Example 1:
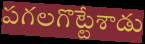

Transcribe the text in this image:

పగలగొట్టేశాడు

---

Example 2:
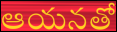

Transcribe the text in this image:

ఆయనతో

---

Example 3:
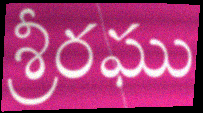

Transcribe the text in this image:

శ్రీరఘు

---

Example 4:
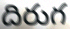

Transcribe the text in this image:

దిరుగ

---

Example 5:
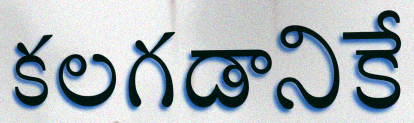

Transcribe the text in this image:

కలగడానికే